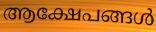
ആക്ഷേപങ്ങൾ